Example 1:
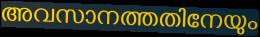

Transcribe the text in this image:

അവസാനത്തതിനേയും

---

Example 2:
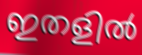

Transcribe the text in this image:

ഇതളിൽ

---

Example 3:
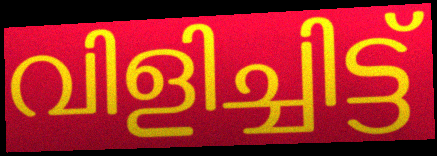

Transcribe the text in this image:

വിളിച്ചിട്ട്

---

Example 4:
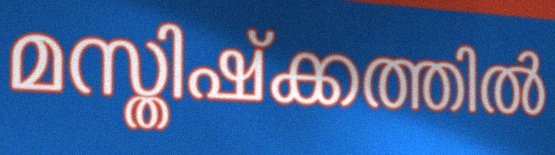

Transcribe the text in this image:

മസ്തിഷ്ക്കത്തിൽ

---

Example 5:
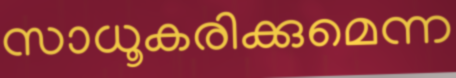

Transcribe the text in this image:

സാധൂകരിക്കുമെന്ന